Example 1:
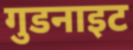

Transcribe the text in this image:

गुडनाइट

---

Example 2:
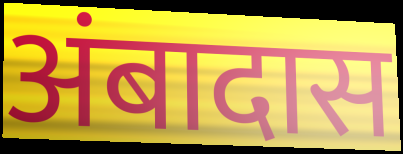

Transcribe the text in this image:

अंबादास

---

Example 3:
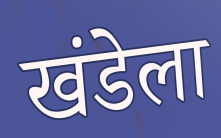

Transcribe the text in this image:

खंडेला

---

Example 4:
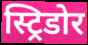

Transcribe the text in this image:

स्ट्रिडोर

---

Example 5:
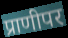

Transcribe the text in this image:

प्राणीपर